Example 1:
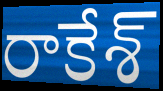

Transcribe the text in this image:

రాకేశ్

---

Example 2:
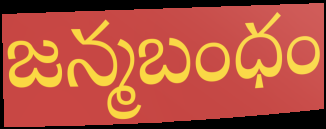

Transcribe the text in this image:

జన్మబంధం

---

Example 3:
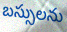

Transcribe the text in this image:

బస్సులను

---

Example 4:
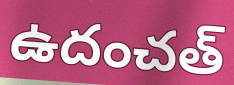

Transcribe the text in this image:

ఉదంచత్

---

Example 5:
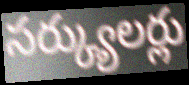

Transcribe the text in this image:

సర్క్యులర్లు